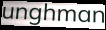
unghman